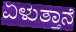
ಏಳುತ್ತಾನೆ